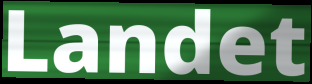
Landet